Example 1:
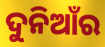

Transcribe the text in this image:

ଦୁନିଆଁର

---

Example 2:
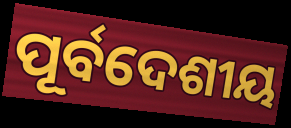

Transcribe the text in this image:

ପୂର୍ବଦେଶୀୟ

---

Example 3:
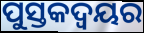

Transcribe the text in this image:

ପୁସ୍ତକଦ୍ୱୟର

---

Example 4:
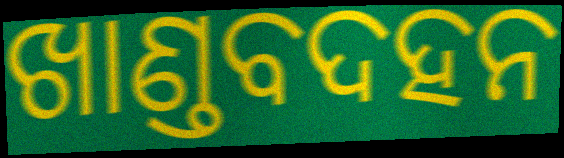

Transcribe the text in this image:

ଖାଣ୍ଡବଦହନ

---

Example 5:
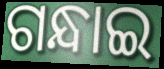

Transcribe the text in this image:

ଗନ୍ଧାଇ